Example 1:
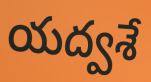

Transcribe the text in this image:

యద్వశే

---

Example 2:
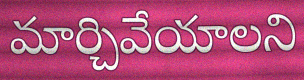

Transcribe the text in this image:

మార్చివేయాలని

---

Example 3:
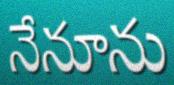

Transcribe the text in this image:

నేనూను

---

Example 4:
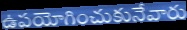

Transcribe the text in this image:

ఉపయోగించుకునేవారు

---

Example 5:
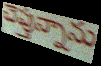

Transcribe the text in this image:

చెప్తున్నాను